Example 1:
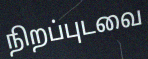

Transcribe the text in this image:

நிறப்புடவை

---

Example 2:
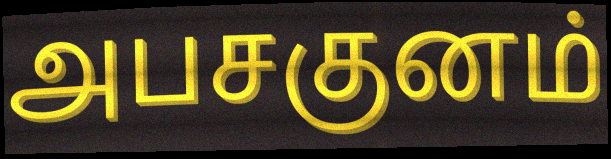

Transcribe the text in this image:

அபசகுனம்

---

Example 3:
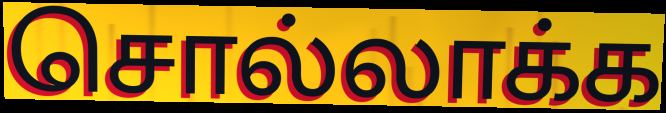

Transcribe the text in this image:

சொல்லாக்க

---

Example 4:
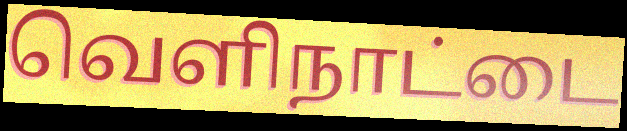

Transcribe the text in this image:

வெளிநாட்டை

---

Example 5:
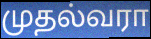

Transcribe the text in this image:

முதல்வரா